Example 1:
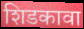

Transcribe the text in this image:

शिडकावा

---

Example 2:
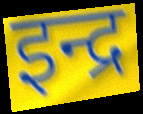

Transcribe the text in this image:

इन्द्र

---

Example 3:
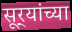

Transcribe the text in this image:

सूर्यांच्या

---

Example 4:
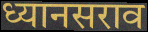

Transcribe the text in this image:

ध्यानसराव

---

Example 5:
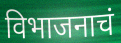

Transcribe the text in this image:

विभाजनाचं